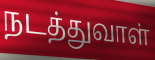
நடத்துவாள்